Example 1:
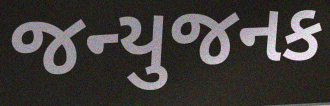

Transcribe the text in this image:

જન્યુજનક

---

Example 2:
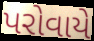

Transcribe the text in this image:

પરોવાયે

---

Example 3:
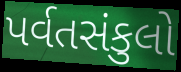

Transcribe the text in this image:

પર્વતસંકુલો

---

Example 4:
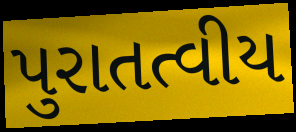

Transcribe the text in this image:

પુરાતત્વીય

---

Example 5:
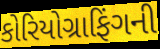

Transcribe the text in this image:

કોરિયોગ્રાફિંગની